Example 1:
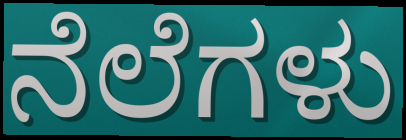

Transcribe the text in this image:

ನೆಲೆಗಳು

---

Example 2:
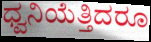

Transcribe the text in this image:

ಧ್ವನಿಯೆತ್ತಿದರೂ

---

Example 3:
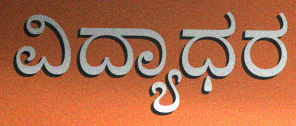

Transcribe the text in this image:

ವಿದ್ಯಾಧರ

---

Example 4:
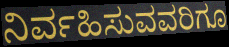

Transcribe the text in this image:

ನಿರ್ವಹಿಸುವವರಿಗೂ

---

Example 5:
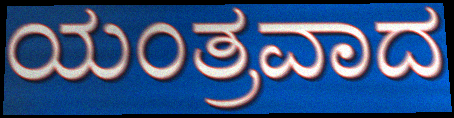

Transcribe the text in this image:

ಯಂತ್ರವಾದ